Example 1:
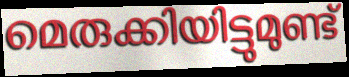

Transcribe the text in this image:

മെരുക്കിയിട്ടുമുണ്ട്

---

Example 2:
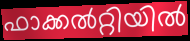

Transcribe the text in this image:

ഫാക്കൽറ്റിയിൽ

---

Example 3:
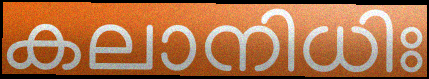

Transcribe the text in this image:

കലാനിധിഃ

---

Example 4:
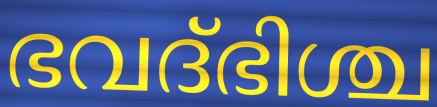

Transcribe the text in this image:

ഭവദ്ഭിശ്ച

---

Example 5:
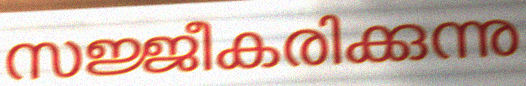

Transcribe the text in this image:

സജ്ജീകരിക്കുന്നു